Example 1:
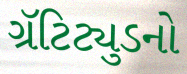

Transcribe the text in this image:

ગ્રૅટિટ્યુડનો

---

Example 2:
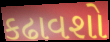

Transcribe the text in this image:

કઢાવશો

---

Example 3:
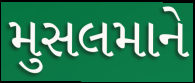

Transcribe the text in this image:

મુસલમાને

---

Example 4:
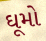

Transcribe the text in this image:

ઘૂમો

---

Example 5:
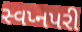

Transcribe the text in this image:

સ્વપ્નપરી